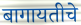
बागायतीचे